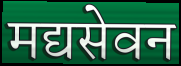
मद्यसेवन